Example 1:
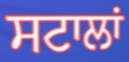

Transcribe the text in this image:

ਸਟਾਲਾਂ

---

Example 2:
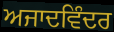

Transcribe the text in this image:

ਅਜਾਦਵਿੰਦਰ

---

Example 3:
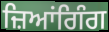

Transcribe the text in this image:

ਜ਼ਿਆਂਗਿੰਗ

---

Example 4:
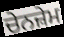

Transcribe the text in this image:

ਚੇਨਜ਼ੇਮ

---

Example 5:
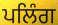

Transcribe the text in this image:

ਪਲਿੰਗ